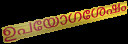
ഉപയോഗശേഷം